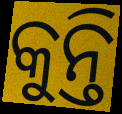
କୁନ୍ତି